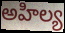
అహిల్య